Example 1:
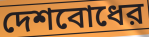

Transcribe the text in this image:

দেশবোধের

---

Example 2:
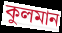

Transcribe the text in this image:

কুলমান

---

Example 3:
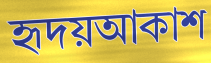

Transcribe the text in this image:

হৃদয়আকাশ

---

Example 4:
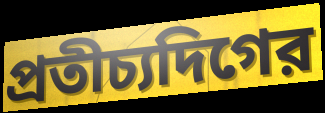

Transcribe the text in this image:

প্রতীচ্যদিগের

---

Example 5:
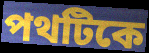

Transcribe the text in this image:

পথটিকে